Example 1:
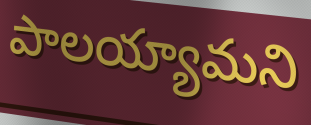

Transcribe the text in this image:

పాలయ్యామని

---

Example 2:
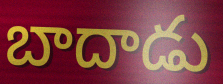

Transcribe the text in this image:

బాదాడు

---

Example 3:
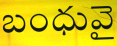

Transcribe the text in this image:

బంధువై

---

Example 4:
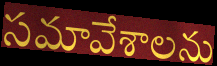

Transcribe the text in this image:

సమావేశాలను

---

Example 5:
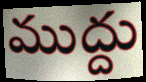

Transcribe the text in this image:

ముద్దు